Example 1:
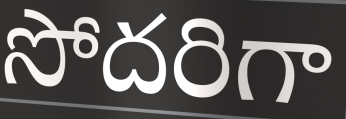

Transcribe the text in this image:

సోదరిగా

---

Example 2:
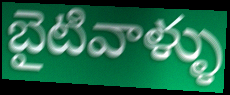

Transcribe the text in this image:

బైటివాళ్ళు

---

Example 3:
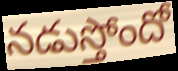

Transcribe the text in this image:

నడుస్తోందో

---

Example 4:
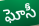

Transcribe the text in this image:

ఘోసీ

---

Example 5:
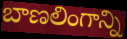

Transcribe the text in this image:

బాణలింగాన్ని